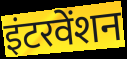
इंटरवेंशन